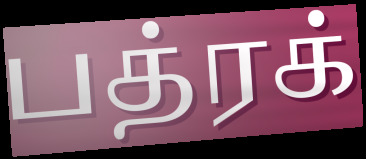
பத்ரக்